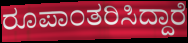
ರೂಪಾಂತರಿಸಿದ್ದಾರೆ